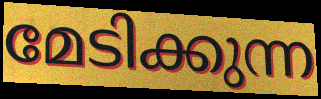
മേടിക്കുന്ന